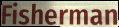
Fisherman